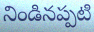
నిండినప్పటి